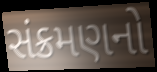
સંક્રમણનો